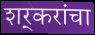
शर्करांचा